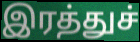
இரத்துச்